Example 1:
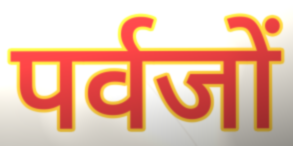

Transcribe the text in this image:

पर्वजों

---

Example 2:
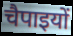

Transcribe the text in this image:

चैपाइयों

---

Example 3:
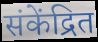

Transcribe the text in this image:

संकेंद्रित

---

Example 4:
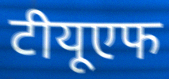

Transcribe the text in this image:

टीयूएफ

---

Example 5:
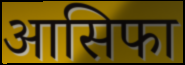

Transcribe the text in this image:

आसिफा